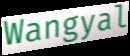
Wangyal